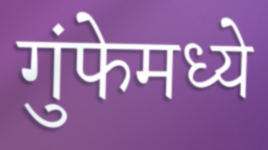
गुंफेमध्ये